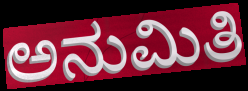
ಅನುಮಿತಿ